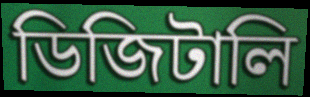
ডিজিটালি